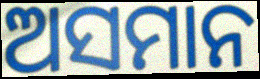
ଅସମାନ